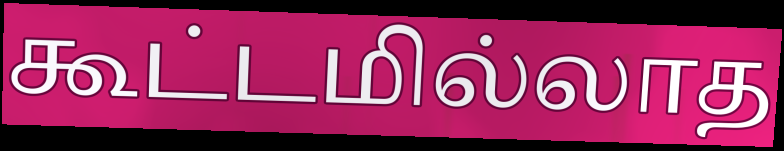
கூட்டமில்லாத